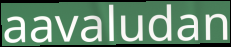
aavaludan